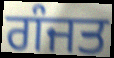
ਗੰਜਤ